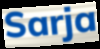
Sarja